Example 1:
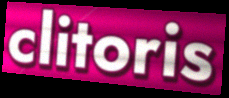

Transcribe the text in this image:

clitoris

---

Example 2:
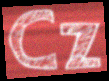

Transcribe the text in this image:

Cz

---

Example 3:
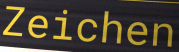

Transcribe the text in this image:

Zeichen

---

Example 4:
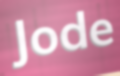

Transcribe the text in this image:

Jode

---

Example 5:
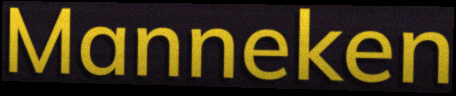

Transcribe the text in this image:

Manneken